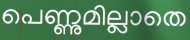
പെണ്ണുമില്ലാതെ